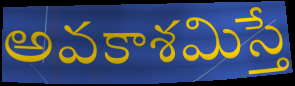
అవకాశమిస్తే